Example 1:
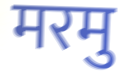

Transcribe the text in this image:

मरमु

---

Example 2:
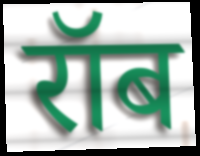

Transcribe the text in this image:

रॉब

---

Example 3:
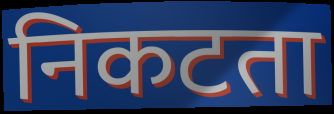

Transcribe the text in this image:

निकटता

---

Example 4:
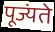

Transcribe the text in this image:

पूज्यंते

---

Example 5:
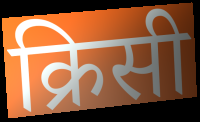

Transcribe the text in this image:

क्रिसी